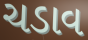
ચડાવ